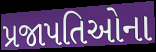
પ્રજાપતિઓના